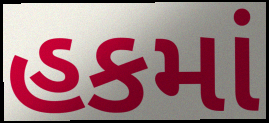
હકમાં